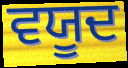
ਵਯੂਦ